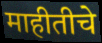
माहीतीचे